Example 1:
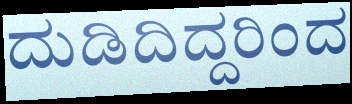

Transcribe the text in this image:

ದುಡಿದಿದ್ದರಿಂದ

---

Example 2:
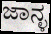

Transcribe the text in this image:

ಜಾನ್ಳ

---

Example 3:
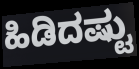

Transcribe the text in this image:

ಹಿಡಿದಷ್ಟು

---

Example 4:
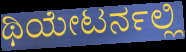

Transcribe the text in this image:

ಥಿಯೇಟರ್ನಲ್ಲಿ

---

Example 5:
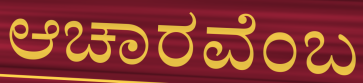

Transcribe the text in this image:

ಆಚಾರವೆಂಬ